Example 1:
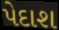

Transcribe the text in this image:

પેદાશ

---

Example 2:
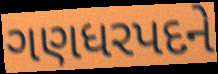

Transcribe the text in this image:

ગણધરપદને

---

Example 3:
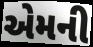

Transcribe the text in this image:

એમની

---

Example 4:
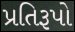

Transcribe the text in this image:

પ્રતિરૂપો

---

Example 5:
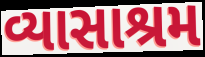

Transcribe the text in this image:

વ્યાસાશ્રમ